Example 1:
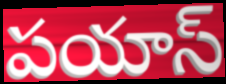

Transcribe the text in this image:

పయాస్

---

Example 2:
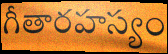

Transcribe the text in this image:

గీతారహస్యం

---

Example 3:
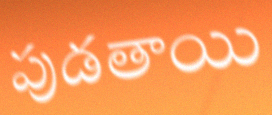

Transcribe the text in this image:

పుడతాయి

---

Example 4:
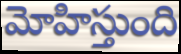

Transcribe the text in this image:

మోహిస్తుంది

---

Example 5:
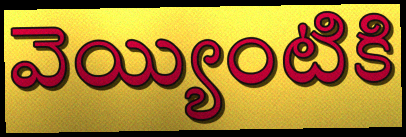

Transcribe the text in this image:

వెయ్యింటికి